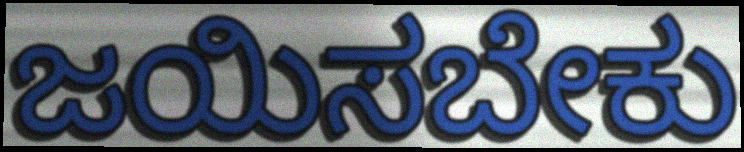
ಜಯಿಸಬೇಕು